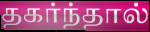
தகர்ந்தால்